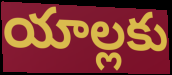
యాల్లకు